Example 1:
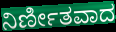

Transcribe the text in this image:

ನಿರ್ಣೀತವಾದ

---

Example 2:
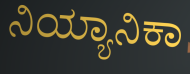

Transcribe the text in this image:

ನಿಯ್ಯಾನಿಕಾ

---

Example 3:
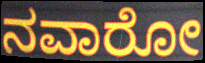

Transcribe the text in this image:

ನವಾರೋ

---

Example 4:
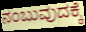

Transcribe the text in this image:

ನಂಬುವುದಕ್ಕೆ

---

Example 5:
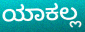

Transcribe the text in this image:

ಯಾಕಲ್ಲ